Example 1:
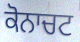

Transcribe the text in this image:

ਕੋਨਾਚਟ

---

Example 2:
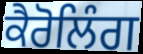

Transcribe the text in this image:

ਕੈਰੋਲਿੰਗ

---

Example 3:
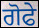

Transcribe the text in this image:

ਗੋਫੇ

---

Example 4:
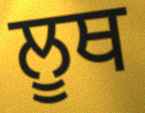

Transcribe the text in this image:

ਲੂਥ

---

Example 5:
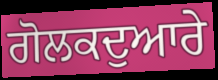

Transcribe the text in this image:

ਗੋਲਕਦੁਆਰੇ